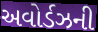
અવોર્ડઝની